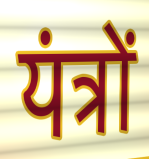
यंत्रों